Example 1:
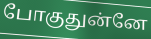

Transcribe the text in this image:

போகுதுன்னே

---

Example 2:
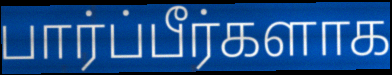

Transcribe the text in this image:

பார்ப்பீர்களாக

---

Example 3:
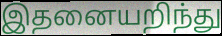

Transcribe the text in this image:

இதனையறிந்து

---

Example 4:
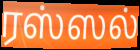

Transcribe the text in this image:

ரஸ்ஸல்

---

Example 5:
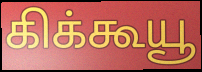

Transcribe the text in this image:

கிக்கூயூ